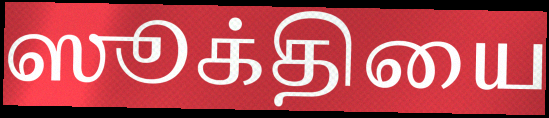
ஸூக்தியை